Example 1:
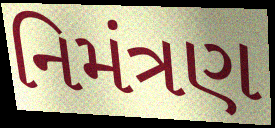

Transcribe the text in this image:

નિમંત્રણ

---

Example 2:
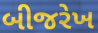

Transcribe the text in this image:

બીજરેખ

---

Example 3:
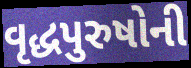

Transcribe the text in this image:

વૃદ્ધપુરુષોની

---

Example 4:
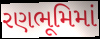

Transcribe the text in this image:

રણભૂમિમાં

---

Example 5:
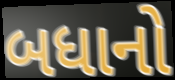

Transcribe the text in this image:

બધાનો